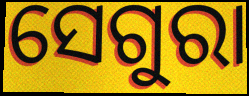
ସେଗୁରା